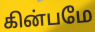
கின்பமே